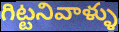
గిట్టనివాళ్ళు